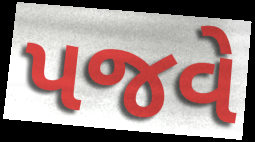
પજવે